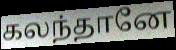
கலந்தானே